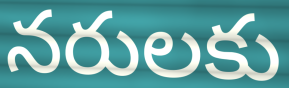
నరులకు